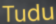
Tudu